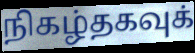
நிகழ்தகவுக்